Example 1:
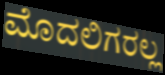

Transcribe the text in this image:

ಮೊದಲಿಗರಲ್ಲ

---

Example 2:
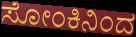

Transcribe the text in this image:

ಸೋಂಕಿನಿಂದ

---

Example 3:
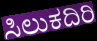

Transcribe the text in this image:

ಸಿಲುಕದಿರಿ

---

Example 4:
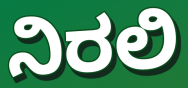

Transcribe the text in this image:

ನಿರಲಿ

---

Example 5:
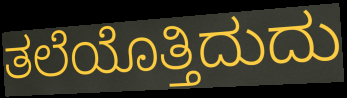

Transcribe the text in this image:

ತಲೆಯೊತ್ತಿದುದು